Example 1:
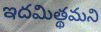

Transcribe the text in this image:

ఇదమిత్థమని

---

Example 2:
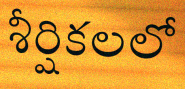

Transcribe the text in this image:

శీర్షికలలో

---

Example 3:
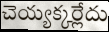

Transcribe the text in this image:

చెయ్యక్కర్లేదు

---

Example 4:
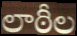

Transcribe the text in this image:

లాఠీల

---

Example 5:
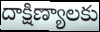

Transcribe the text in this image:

దాక్షిణ్యాలకు